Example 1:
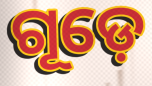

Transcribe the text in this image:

ଗୂଡ଼େ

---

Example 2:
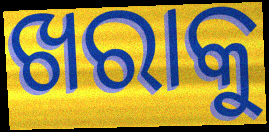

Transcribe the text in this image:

ଖରାକୁ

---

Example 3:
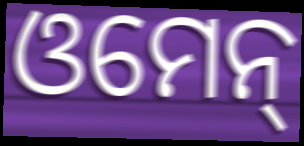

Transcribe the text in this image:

ଓମେନ୍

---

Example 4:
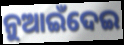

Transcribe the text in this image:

ନୁଆଇଁଦେଇ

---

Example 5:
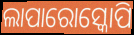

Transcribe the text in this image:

ଲାପାରୋସ୍କୋପି